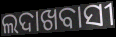
ଲଦାଖବାସୀ